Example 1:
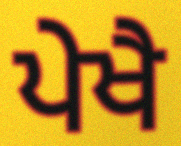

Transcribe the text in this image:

ਪੇਖੈ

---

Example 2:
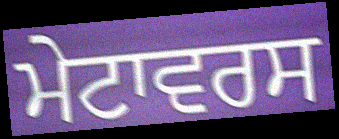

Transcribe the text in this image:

ਮੇਟਾਵਰਸ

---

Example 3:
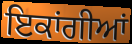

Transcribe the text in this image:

ਇਕਾਂਗੀਆਂ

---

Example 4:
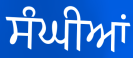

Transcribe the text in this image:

ਸੰਘੀਆਂ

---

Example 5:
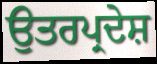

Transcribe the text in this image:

ਉਤਰਪ੍ਰਦੇਸ਼